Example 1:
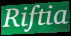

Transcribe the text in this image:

Riftia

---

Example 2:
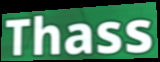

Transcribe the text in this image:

Thass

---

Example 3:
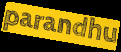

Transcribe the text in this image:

parandhu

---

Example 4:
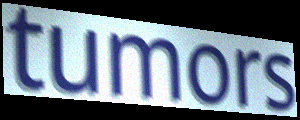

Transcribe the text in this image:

tumors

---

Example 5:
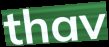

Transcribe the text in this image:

thav